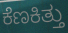
ಕೆಣಕಿತ್ತು